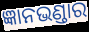
ଜ୍ଞାନଭଣ୍ଡାର